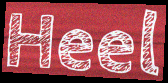
Heel